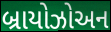
બ્રાયોઝોઅન